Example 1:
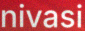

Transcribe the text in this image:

nivasi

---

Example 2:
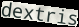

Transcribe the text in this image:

dextris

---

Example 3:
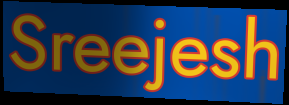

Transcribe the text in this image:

Sreejesh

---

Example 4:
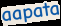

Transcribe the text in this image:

aapata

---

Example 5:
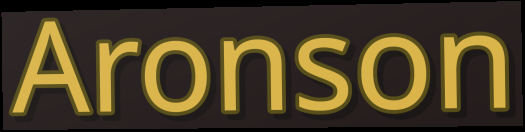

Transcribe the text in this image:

Aronson